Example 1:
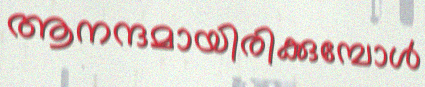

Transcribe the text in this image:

ആനന്ദമായിരിക്കുമ്പോൾ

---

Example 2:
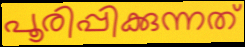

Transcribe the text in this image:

പൂരിപ്പിക്കുന്നത്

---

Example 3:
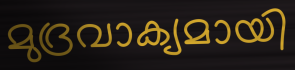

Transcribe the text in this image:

മുദ്രവാക്യമായി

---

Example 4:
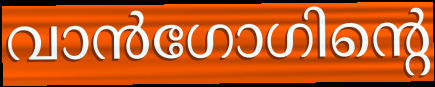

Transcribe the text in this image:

വാൻഗോഗിന്റെ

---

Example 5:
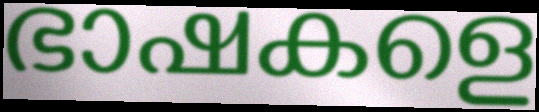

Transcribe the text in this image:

ഭാഷകളെ